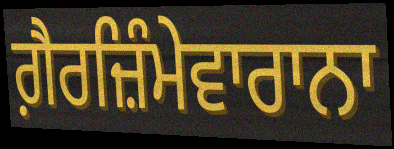
ਗ਼ੈਰਜ਼ਿੰਮੇਵਾਰਾਨਾ